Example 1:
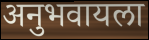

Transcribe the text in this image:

अनुभवायला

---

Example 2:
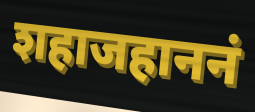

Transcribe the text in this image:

शहाजहाननं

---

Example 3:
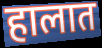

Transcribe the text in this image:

हालात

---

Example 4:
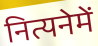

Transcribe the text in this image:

नित्यनेमें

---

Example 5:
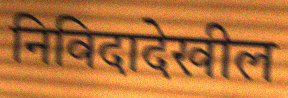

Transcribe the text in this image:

निविदादेखील